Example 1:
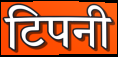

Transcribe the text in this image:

टिपनी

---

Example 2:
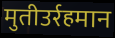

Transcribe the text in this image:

मुतीउर्रहमान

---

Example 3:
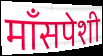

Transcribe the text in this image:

माँसपेशी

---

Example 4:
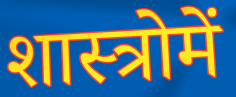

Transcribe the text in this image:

शास्त्रोमें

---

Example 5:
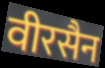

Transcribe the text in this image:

वीरसैन